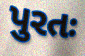
પુરતઃ